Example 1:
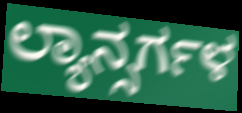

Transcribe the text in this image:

ಲ್ಯಾನ್ಸರ್ಗಳ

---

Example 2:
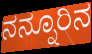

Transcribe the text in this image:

ನನ್ನೂರಿನ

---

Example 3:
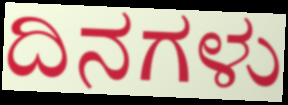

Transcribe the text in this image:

ದಿನಗಳು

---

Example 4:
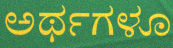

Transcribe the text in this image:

ಅರ್ಥಗಳೂ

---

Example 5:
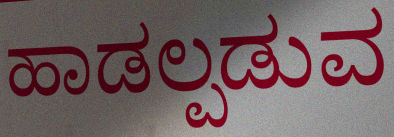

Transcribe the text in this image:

ಹಾಡಲ್ಪಡುವ